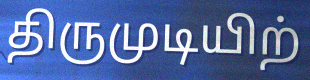
திருமுடியிற்